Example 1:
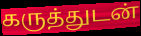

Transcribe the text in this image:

கருத்துடன்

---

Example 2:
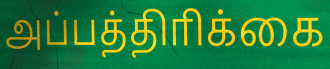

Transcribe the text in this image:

அப்பத்திரிக்கை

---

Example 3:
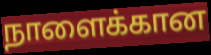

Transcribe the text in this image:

நாளைக்கான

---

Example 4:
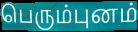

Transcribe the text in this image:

பெரும்புனம்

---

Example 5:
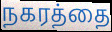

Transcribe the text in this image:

நகரத்தை